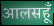
आलसहूँ